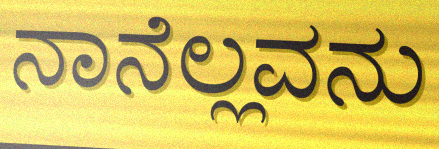
ನಾನೆಲ್ಲವನು